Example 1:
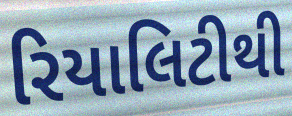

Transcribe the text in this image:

રિયાલિટીથી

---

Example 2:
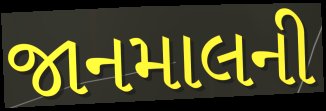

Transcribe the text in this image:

જાનમાલની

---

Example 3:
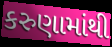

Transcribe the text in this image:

કરુણામાંથી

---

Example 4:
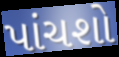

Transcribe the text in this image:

પાંચશો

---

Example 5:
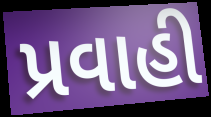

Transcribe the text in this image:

પ્રવાહી